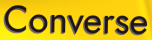
Converse